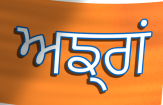
ਅਙ੍ਗਂ